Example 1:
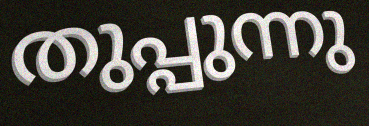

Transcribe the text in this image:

തുപ്പുന്നു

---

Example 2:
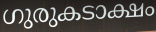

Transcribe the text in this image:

ഗുരുകടാക്ഷം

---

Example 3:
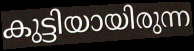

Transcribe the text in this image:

കുട്ടിയായിരുന്ന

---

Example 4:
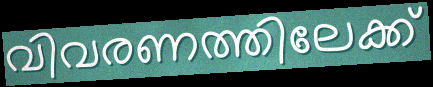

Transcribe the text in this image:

വിവരണത്തിലേക്ക്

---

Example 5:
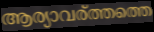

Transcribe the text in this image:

ആര്യാവര്ത്തത്തെ